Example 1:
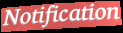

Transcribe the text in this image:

Notification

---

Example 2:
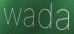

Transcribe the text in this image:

wada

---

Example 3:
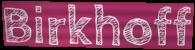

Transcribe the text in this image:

Birkhoff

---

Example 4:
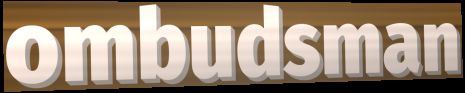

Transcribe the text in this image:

ombudsman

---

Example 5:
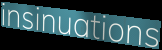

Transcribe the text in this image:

insinuations